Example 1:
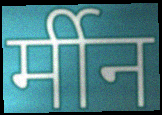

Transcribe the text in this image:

र्मीन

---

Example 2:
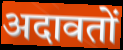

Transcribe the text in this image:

अदावतों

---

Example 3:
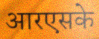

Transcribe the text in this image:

आरएसके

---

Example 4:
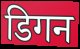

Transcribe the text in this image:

डिगन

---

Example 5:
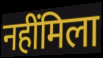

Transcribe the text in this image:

नहींमिला